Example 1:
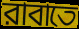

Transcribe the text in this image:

রাবাতে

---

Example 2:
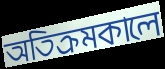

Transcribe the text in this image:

অতিক্রমকালে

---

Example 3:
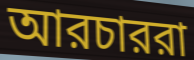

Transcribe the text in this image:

আরচাররা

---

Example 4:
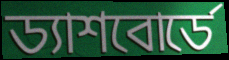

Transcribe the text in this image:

ড্যাশবোর্ডে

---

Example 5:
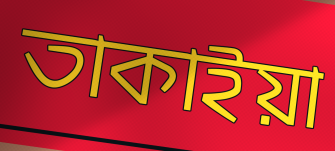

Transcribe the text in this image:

তাকাইয়া